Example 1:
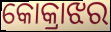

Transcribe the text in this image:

କୋକ୍ରାଝର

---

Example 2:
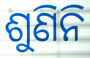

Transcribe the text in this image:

ଶୁଣିନି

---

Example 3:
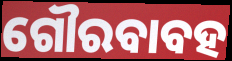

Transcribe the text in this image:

ଗୌରବାବହ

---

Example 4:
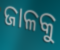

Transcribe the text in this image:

ଜାଳକୁ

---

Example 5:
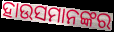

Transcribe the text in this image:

ହାଉସମାନଙ୍କର